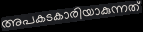
അപകടകാരിയാകുന്നത്